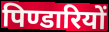
पिण्डारियों